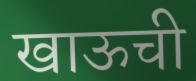
खाऊची